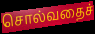
சொல்வதைச்